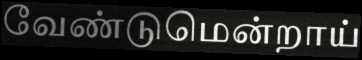
வேண்டுமென்றாய்